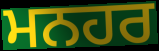
ਮਨਹਰ